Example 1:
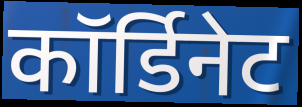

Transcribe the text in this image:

कॉर्डिनेट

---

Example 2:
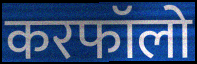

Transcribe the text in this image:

करफॉलो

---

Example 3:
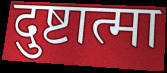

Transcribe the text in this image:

दुष्टात्मा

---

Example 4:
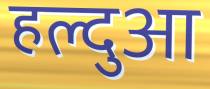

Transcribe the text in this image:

हल्दुआ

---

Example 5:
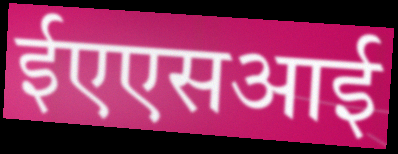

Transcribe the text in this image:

ईएएसआई